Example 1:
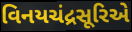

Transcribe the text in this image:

વિનયચંદ્રસૂરિએ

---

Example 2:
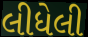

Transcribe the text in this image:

લીધેલી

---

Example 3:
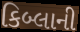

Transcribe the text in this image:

કિબ્લાની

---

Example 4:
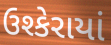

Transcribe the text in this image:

ઉશ્કેરાયાં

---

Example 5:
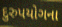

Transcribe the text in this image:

દુરુપયોગના